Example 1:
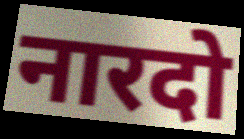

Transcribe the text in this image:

नारदो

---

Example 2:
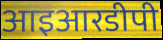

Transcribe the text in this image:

आइआरडीपी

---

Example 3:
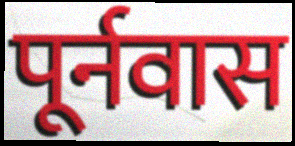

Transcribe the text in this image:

पूर्नवास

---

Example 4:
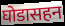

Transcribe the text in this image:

घोडासहन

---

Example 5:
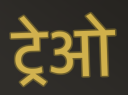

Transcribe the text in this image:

ट्रेओ